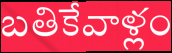
బతికేవాళ్లం